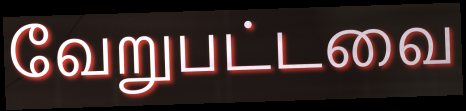
வேறுபட்டவை